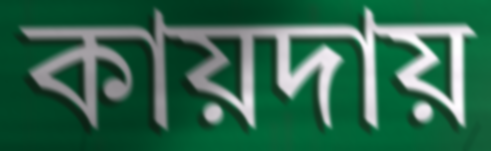
কায়দায়